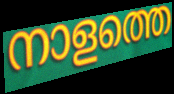
നാളത്തെ